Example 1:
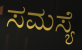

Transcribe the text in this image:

ಸಮಸ್ಯೆ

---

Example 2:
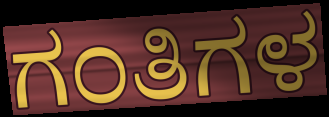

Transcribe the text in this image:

ಗಂತಿಗಳ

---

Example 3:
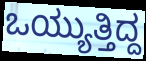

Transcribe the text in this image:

ಒಯ್ಯುತ್ತಿದ್ದ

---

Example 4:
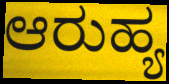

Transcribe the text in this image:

ಆರುಹ್ಯ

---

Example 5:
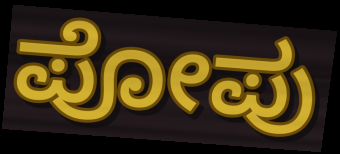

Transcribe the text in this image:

ಪೋಪು